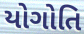
યોગોતિ